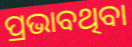
ପ୍ରଭାବଥିବା